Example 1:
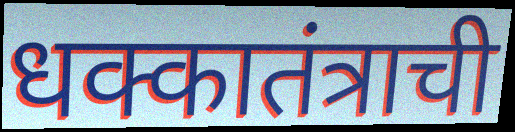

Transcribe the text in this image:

धक्कातंत्राची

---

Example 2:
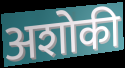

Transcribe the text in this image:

अशोकी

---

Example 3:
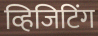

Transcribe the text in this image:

व्हिजिटिंग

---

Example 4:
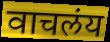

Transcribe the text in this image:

वाचलंय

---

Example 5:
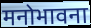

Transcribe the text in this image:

मनोभावना